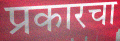
प्रकारचा